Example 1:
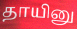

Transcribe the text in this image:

தாயினு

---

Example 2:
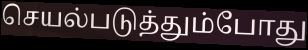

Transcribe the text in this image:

செயல்படுத்தும்போது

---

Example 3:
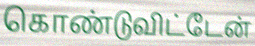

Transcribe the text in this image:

கொண்டுவிட்டேன்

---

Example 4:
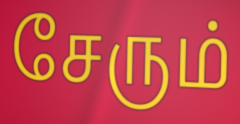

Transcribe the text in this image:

சேரும்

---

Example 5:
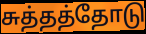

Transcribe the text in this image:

சுத்தத்தோடு